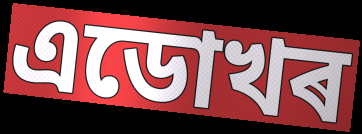
এডোখৰ